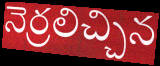
నెర్రలిచ్చిన